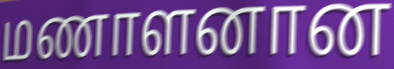
மணாளனான